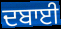
ਦਬਾਈ